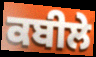
ਕਬੀਲੇ